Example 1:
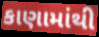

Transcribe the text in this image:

કાણામાંથી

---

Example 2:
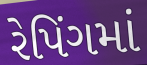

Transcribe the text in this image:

રેપિંગમાં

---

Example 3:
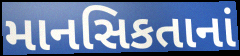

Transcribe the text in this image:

માનસિકતાનાં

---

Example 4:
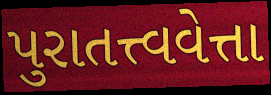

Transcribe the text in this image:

પુરાતત્ત્વવેત્તા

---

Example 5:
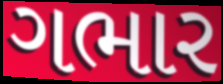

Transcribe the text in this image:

ગભાર